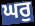
ਘਰੁ